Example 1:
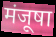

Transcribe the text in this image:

मंजूषा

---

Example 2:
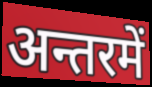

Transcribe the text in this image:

अन्तरमें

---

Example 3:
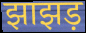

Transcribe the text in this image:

झाझड़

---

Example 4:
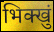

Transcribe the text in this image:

भिक्खुं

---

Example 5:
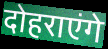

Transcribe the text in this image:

दोहराएंगे